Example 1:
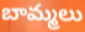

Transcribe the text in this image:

బామ్మలు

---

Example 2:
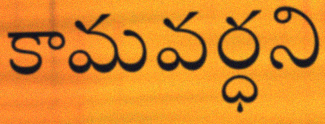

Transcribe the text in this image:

కామవర్ధని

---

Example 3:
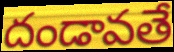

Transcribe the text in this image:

దండావతే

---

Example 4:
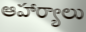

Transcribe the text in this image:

ఆహార్యాలు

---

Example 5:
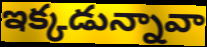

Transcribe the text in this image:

ఇక్కడున్నావా